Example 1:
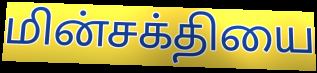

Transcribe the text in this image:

மின்சக்தியை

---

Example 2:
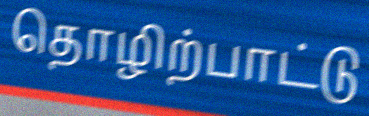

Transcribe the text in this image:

தொழிற்பாட்டு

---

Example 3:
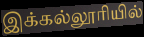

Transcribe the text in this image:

இக்கல்லூரியில்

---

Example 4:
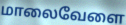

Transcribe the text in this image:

மாலைவேளை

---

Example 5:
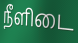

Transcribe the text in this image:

நீளிடை